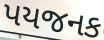
પયજનક